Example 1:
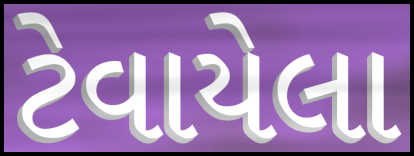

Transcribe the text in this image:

ટેવાયેલા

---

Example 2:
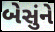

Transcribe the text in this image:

બેસુંને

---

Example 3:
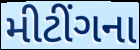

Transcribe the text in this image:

મીટીંગના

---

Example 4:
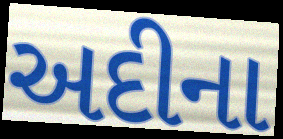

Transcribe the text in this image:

અદીના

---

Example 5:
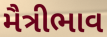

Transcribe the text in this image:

મૈત્રીભાવ